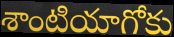
శాంటియాగోకు